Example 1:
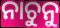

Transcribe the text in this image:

ନାଚୁନୁ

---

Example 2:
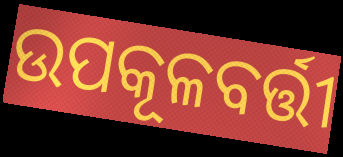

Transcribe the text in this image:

ଉପକୂଳବର୍ତ୍ତୀ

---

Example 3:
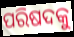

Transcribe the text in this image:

ପରିଷଦକୁ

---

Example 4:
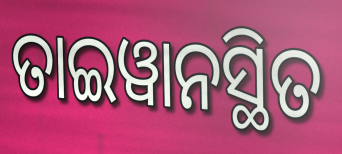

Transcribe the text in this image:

ତାଇୱାନସ୍ଥିତ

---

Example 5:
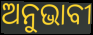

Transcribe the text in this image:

ଅନୁଭାବୀ